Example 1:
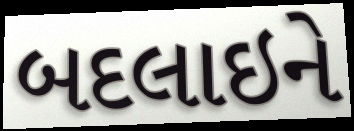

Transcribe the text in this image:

બદલાઇને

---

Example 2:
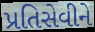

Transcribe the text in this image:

પ્રતિસેવીને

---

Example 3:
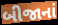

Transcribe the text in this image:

બીજાનાં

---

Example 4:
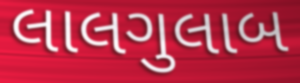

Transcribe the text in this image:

લાલગુલાબ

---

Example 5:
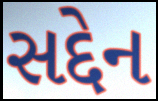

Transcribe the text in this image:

સદ્દેન